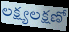
లక్ష్యలక్షణో